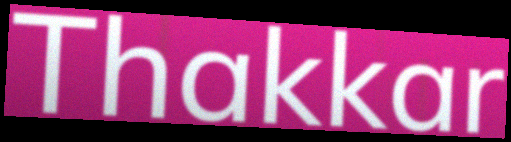
Thakkar